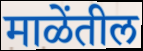
माळेंतील